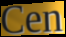
Cen